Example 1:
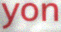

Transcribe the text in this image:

yon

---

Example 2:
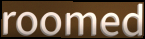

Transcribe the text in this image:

roomed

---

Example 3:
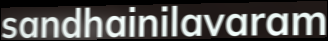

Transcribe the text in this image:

sandhainilavaram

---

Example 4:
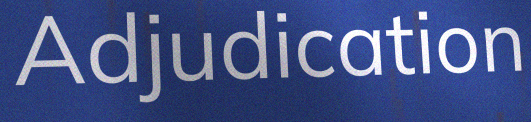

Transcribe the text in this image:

Adjudication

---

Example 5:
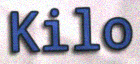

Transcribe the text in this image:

Kilo